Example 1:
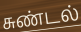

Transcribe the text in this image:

சுண்டல்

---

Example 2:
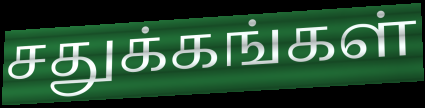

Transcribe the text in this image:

சதுக்கங்கள்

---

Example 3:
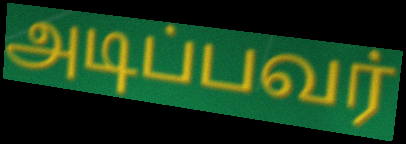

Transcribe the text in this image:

அடிப்பவர்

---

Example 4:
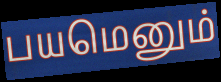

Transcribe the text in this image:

பயமெனும்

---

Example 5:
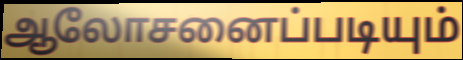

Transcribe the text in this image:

ஆலோசனைப்படியும்